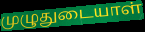
முழுதுடையாள்